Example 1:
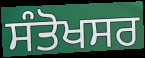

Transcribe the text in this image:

ਸੰਤੋਖਸਰ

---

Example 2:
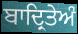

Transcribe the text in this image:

ਬਾਦ੍ਰਿਤੇਅੰ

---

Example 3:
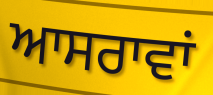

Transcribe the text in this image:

ਆਸਰਾਵਾਂ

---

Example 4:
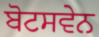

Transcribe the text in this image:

ਬੋਟਸਵੇਨ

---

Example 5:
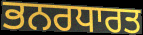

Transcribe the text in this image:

ਭਨਰਧਾਰਤ